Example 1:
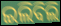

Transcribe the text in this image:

ଇଲିବିଲି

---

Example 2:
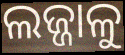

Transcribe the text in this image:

ଲଜ୍ଜାଳୁ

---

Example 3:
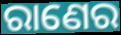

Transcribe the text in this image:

ରାଣେର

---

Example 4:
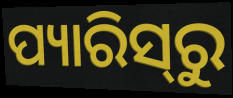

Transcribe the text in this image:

ପ୍ୟାରିସ୍‌ରୁ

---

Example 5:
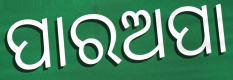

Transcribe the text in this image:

ପାରଅପା